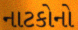
નાટકોનો